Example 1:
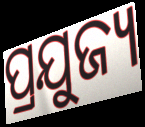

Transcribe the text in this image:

ପ୍ରଯୁଜ୍ୟ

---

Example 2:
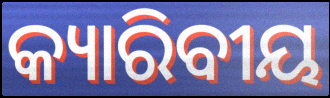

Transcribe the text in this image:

କ୍ୟାରିବୀୟ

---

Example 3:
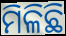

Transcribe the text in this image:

ମିଳିଛି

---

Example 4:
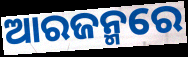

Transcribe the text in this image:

ଆରଜନ୍ମରେ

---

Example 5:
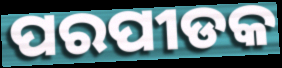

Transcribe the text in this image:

ପରପୀଡକ